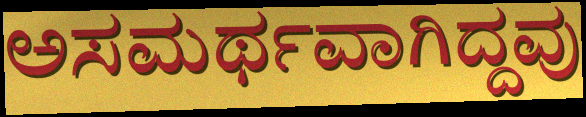
ಅಸಮರ್ಥವಾಗಿದ್ದವು